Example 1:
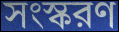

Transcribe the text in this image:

সংস্করণ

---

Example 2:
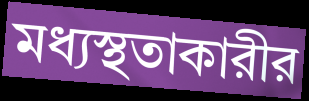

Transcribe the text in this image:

মধ্যস্থতাকারীর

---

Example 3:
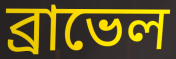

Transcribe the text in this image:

ব্রাভেল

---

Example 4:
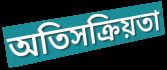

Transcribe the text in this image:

অতিসক্রিয়তা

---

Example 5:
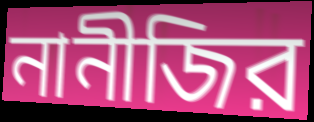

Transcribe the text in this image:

নানীজির